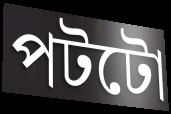
পটটো